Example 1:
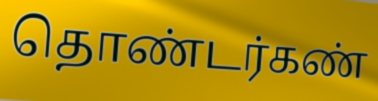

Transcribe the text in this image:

தொண்டர்கண்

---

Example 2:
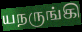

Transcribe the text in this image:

யநருங்கி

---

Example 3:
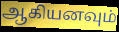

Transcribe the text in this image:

ஆகியனவும்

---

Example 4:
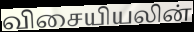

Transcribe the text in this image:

விசையியலின்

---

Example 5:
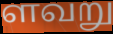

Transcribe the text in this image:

ளவறு